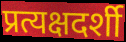
प्रत्यक्षदर्शी